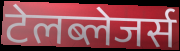
टेलब्लेजर्स